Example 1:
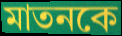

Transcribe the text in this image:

মাতনকে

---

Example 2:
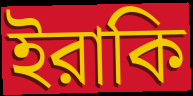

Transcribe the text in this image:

ইরাকি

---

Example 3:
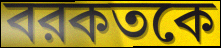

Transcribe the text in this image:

বরকতকে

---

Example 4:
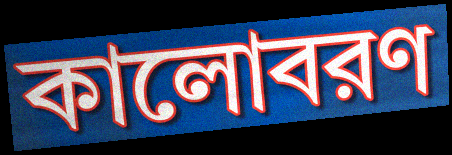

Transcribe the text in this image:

কালোবরণ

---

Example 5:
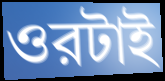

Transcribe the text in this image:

ওরটাই